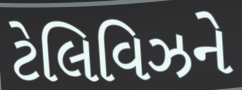
ટેલિવિઝને